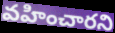
వహించారని